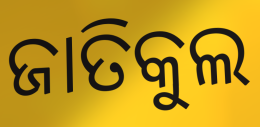
ଜାତିକୁଲ